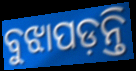
ବୁଝାପଡ଼ନ୍ତି